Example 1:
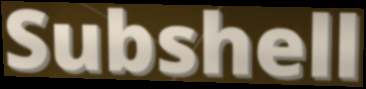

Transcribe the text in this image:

Subshell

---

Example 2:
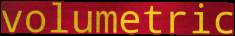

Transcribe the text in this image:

volumetric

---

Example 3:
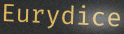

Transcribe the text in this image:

Eurydice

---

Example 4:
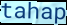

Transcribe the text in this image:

tahap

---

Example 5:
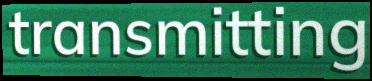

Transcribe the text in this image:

transmitting